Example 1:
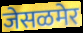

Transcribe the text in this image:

जेसळमेर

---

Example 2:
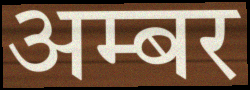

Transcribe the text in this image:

अम्बर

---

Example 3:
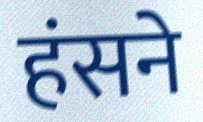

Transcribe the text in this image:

हंसने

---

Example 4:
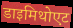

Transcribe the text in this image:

डाइमिथोएट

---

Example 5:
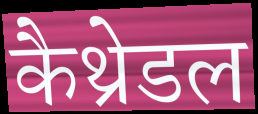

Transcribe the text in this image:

कैथ्रेडल